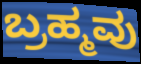
ಬ್ರಹ್ಮವು